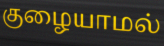
குழையாமல்